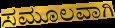
ಸಮೂಲವಾಗಿ